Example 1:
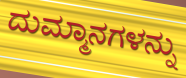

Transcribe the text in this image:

ದುಮ್ಮಾನಗಳನ್ನು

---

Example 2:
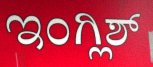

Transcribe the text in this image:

ಇಂಗ್ಲಿಶ್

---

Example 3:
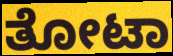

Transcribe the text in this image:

ತೋಟಾ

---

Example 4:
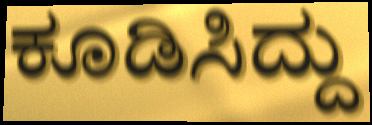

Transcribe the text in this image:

ಕೂಡಿಸಿದ್ದು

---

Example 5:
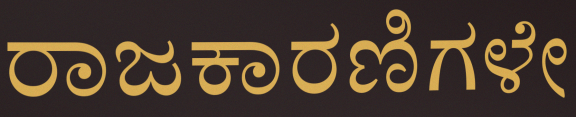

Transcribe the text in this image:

ರಾಜಕಾರಣಿಗಳೇ